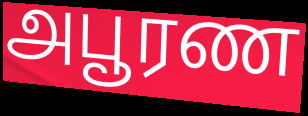
அபூரண